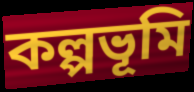
কল্পভূমি